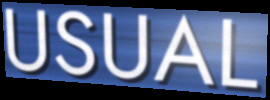
USUAL